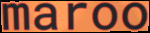
maroo